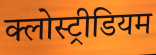
क्लोस्ट्रीडियम